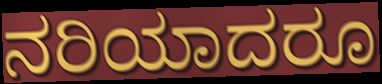
ನರಿಯಾದರೂ